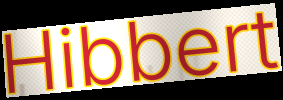
Hibbert